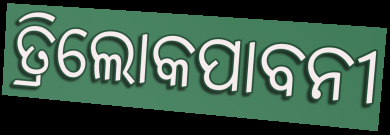
ତ୍ରିଲୋକପାବନୀ